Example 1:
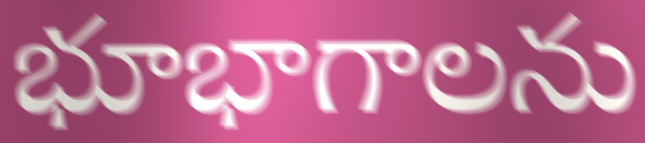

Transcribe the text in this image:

భూభాగాలను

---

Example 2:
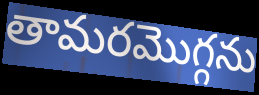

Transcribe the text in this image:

తామరమొగ్గను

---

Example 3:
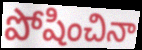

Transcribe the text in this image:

పోషించినా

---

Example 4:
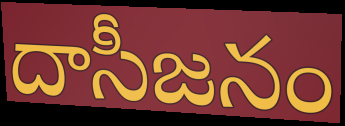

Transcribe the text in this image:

దాసీజనం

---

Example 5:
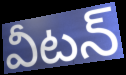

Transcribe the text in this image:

వీటన్